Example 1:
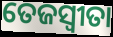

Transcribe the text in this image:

ତେଜସ୍ଵୀତା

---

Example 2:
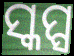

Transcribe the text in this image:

ସ୍କପ୍ସ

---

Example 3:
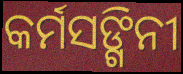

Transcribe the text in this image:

କର୍ମସଙ୍ଗିନୀ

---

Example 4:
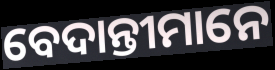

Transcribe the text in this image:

ବେଦାନ୍ତୀମାନେ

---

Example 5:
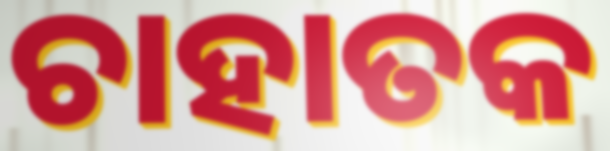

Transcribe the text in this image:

ଚାହାତକ